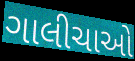
ગાલીચાઓ